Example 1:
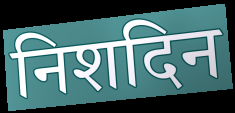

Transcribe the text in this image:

निशदिन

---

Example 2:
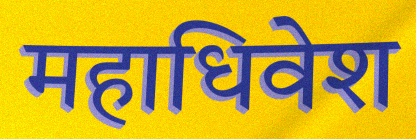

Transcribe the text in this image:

महाधिवेश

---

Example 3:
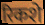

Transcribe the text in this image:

रिकशे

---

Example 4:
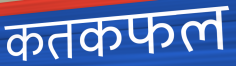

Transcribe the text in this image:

कतकफल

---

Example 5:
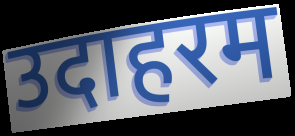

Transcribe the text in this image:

उदाहरम